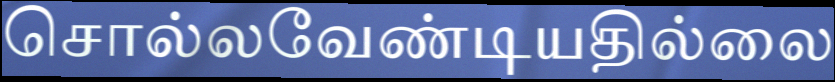
சொல்லவேண்டியதில்லை